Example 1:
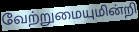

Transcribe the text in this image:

வேற்றுமையுமின்றி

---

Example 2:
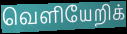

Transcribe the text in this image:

வெளியேறிக்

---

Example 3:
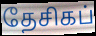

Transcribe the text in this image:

தேசிகப்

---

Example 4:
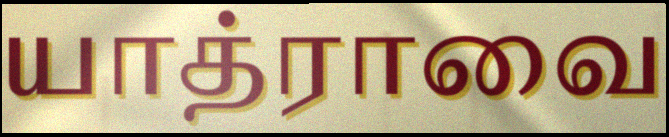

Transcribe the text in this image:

யாத்ராவை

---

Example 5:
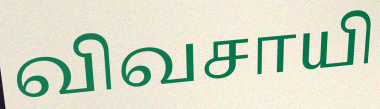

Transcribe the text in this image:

விவசாயி